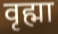
वृह्मा